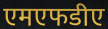
एमएफडीए